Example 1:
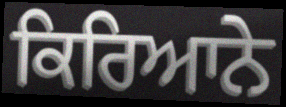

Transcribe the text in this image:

ਕਿਰਿਆਨੇ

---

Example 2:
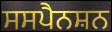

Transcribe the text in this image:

ਸਸਪੈਨਸ਼ਨ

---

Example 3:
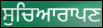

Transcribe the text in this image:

ਸੁਚਿਆਰਾਪਣ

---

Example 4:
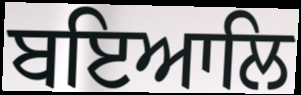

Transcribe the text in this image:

ਬਇਆਲਿ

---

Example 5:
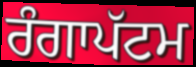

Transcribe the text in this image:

ਰੰਗਾਪੱਟਮ